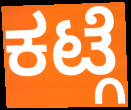
ಕಟ್ಗೆ